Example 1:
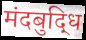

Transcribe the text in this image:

मंदबुद्धि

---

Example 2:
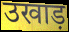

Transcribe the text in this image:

उखाड़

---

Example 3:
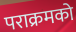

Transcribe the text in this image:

पराक्रमको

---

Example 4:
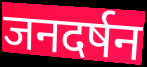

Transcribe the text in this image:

जनदर्षन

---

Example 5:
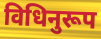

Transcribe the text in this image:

विधिनुरूप